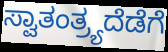
ಸ್ವಾತಂತ್ರ್ಯದೆಡೆಗೆ